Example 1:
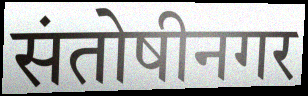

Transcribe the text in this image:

संतोषीनगर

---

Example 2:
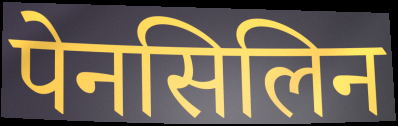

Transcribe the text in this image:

पेनसिलिन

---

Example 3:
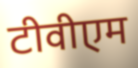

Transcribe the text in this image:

टीवीएम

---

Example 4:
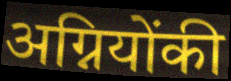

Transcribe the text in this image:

अग्नियोंकी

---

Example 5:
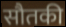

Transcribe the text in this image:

सौतकी